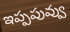
ఇప్పపువ్వు